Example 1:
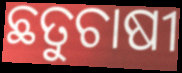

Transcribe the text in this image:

ଛତୁଚାଷୀ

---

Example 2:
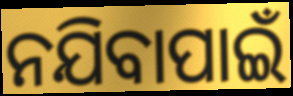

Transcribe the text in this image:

ନଯିବାପାଇଁ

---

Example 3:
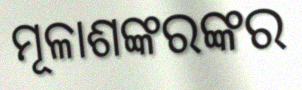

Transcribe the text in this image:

ମୂଳାଶଙ୍କରଙ୍କର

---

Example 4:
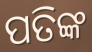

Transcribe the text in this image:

ପତିଙ୍କ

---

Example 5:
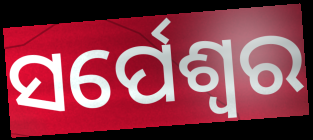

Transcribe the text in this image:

ସର୍ପେଶ୍ୱର